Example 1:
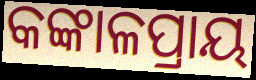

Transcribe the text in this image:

କଙ୍କାଳପ୍ରାୟ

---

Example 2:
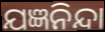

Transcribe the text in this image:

ଯଜ୍ଞନିନ୍ଦା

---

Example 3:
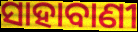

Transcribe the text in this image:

ସାହାବାଣୀ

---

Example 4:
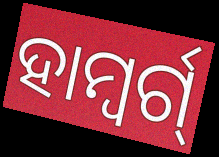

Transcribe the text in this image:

ହାମ୍ବର୍ଗ୍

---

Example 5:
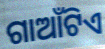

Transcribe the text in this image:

ଗାଆଁଟିଏ